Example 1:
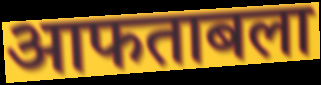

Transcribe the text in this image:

आफताबला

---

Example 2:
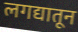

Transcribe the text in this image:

लगद्यातून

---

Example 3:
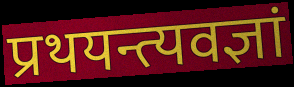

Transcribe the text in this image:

प्रथयन्त्यवज्ञां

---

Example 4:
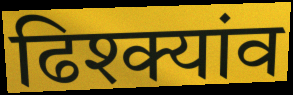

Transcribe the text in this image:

ढिश्क्यांव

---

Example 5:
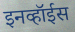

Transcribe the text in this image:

इनव्हॉईस